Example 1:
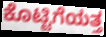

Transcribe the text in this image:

ಕೊಟ್ಟಿಗೆಯತ್ತ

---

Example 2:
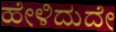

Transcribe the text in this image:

ಹೇಳಿದುದೇ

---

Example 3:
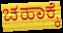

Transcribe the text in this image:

ಚಹಾಕ್ಕೆ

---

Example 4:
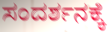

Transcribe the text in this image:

ಸಂದರ್ಶನಕ್ಕೆ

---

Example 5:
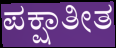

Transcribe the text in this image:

ಪಕ್ಷಾತೀತ